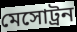
মেসোট্রন